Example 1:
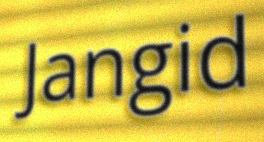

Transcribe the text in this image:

Jangid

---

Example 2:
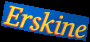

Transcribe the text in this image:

Erskine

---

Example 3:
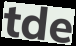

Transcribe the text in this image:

tde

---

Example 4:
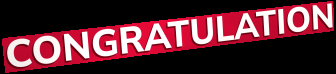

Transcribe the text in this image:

CONGRATULATION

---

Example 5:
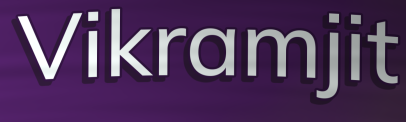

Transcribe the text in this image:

Vikramjit